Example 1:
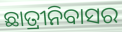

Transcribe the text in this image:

ଛାତ୍ରୀନିବାସର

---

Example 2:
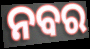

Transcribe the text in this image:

ନବର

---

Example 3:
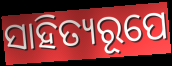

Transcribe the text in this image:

ସାହିତ୍ୟରୂପେ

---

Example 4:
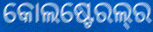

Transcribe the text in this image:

କୋଲଷ୍ଟେରଲ୍‌ର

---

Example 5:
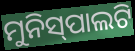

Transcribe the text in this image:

ମୁନିସ୍‍ପାଲଟି